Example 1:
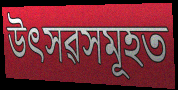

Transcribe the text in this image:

উৎসৱসমূহত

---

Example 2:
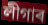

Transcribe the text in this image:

লীগাৰ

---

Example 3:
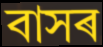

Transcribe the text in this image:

বাসৰ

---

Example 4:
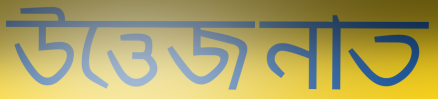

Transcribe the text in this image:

উত্তেজনাত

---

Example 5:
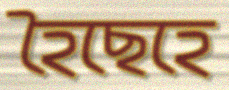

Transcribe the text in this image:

হৈছেহে